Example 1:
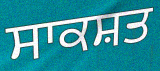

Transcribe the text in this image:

ਸਾਕਸ਼ਤ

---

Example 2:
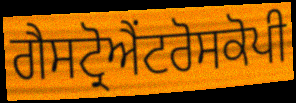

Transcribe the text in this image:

ਗੈਸਟ੍ਰੋਐਂਟਰੋਸਕੋਪੀ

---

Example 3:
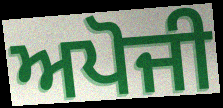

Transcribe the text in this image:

ਅਪੋਜੀ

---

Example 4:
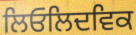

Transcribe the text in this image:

ਲਿਓਲਿਦਵਿਕ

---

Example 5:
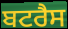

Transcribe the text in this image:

ਬਟਰੈਸ